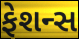
ફેશન્સ